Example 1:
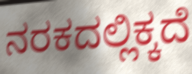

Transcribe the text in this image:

ನರಕದಲ್ಲಿಕ್ಕದೆ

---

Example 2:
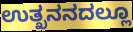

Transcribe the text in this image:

ಉತ್ಖನನದಲ್ಲೂ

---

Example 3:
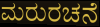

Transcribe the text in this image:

ಮರುರಚನೆ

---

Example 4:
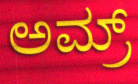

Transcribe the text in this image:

ಅಮ್ರ್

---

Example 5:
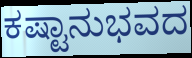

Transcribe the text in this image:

ಕಷ್ಟಾನುಭವದ